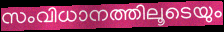
സംവിധാനത്തിലൂടെയും